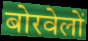
बोरवेलों